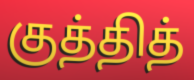
குத்தித்